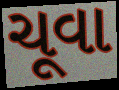
ચૂવા